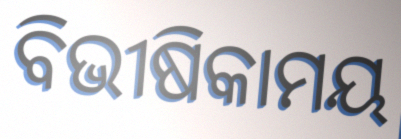
ବିଭୀଷିକାମୟ